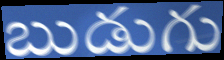
బుడుగు